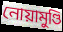
নোয়ামুণ্ডি